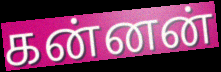
கன்னன்